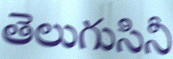
తెలుగుసినీ